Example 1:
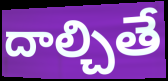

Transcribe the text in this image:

దాల్చితే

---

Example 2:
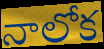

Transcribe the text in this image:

నాలోక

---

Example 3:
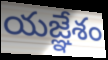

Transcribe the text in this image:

యజ్ఞేశం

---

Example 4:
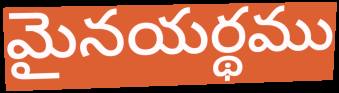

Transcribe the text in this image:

మైనయర్థము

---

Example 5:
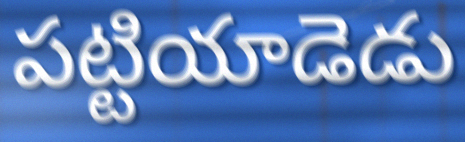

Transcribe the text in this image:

పట్టియాడెడు